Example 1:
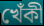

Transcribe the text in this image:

খেঁকী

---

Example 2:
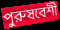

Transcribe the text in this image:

পুরুষবেশী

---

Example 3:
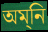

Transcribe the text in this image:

অম্‌নি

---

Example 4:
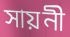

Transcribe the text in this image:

সায়নী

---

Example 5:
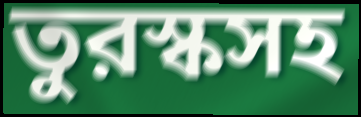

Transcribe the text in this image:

তুরস্কসহ